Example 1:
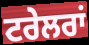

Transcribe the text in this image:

ਟਰੇਲਰਾਂ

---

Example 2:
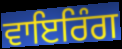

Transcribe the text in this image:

ਵਾਇਰਿੰਗ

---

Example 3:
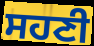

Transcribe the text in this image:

ਸਹਣੀ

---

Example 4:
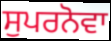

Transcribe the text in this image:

ਸੁਪਰਨੋਵਾ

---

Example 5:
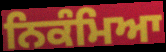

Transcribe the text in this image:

ਨਿਕੰਮਿਆ